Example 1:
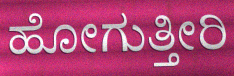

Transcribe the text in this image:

ಹೋಗುತ್ತೀರಿ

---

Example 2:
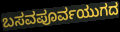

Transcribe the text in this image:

ಬಸವಪೂರ್ವಯುಗದ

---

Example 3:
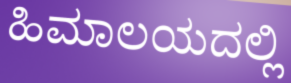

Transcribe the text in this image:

ಹಿಮಾಲಯದಲ್ಲಿ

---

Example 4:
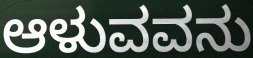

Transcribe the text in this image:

ಆಳುವವನು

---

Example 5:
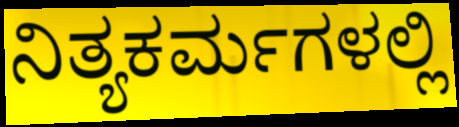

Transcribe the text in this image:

ನಿತ್ಯಕರ್ಮಗಳಲ್ಲಿ